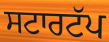
ਸਟਾਰਟੱਪ